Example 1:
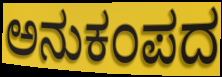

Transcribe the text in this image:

ಅನುಕಂಪದ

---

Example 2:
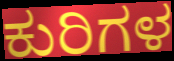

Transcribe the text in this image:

ಕುರಿಗಳ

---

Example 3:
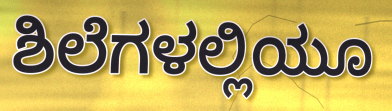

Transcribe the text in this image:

ಶಿಲೆಗಳಲ್ಲಿಯೂ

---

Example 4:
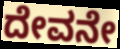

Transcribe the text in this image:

ದೇವನೇ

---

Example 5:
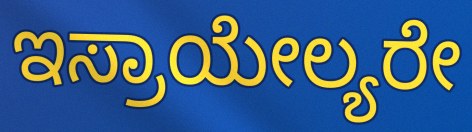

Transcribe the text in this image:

ಇಸ್ರಾಯೇಲ್ಯರೇ